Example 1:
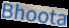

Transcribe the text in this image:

Bhoota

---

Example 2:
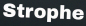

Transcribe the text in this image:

Strophe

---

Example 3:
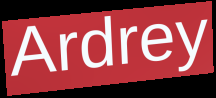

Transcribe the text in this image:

Ardrey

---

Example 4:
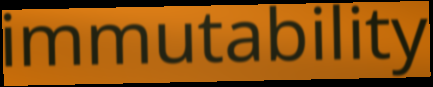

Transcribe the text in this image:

immutability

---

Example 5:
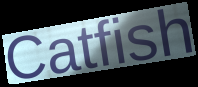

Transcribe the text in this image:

Catfish